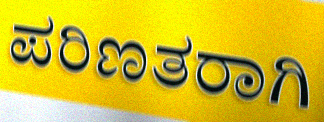
ಪರಿಣತರಾಗಿ